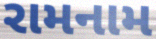
રામનામ